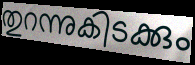
തുറന്നുകിടക്കും